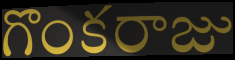
గొంకరాజు